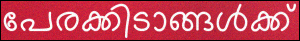
പേരക്കിടാങ്ങൾക്ക്